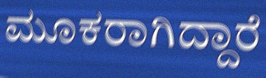
ಮೂಕರಾಗಿದ್ದಾರೆ